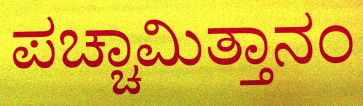
ಪಚ್ಚಾಮಿತ್ತಾನಂ